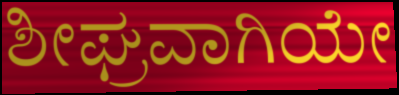
ಶೀಘ್ರವಾಗಿಯೇ